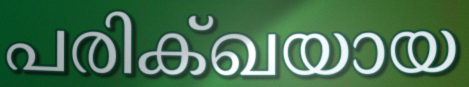
പരിക്ഖയായ